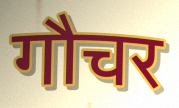
गौचर